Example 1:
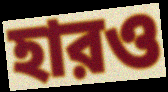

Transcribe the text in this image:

হারও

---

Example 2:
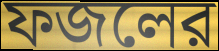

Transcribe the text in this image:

ফজলের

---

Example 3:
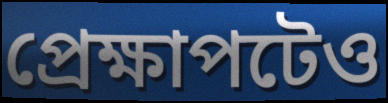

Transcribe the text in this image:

প্রেক্ষাপটেও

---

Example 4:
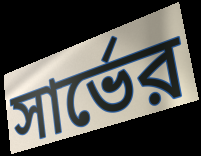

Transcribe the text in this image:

সার্ভের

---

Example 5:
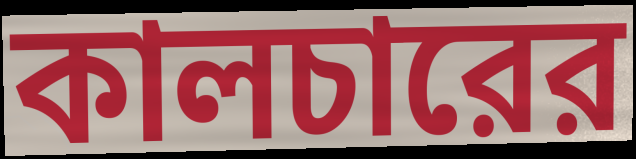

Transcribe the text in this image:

কালচারের